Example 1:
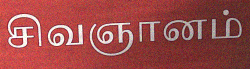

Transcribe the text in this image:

சிவஞானம்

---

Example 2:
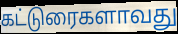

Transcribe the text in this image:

கட்டுரைகளாவது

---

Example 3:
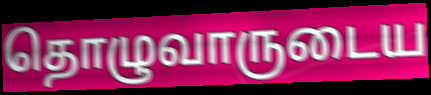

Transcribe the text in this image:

தொழுவாருடைய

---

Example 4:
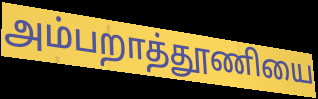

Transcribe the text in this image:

அம்பறாத்தூணியை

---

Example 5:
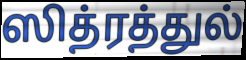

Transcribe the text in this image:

ஸித்ரத்துல்